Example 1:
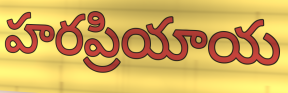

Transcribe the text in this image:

హరప్రియాయ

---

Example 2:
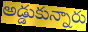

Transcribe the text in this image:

అడ్డుకున్నారు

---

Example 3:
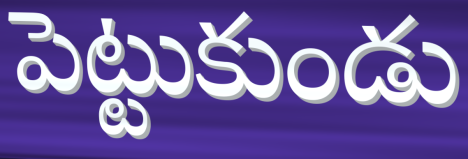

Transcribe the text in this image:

పెట్టుకుండు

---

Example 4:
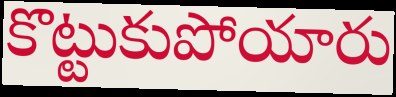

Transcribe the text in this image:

కొట్టుకుపోయారు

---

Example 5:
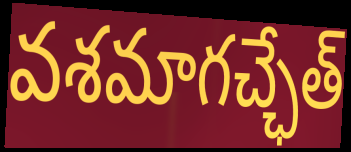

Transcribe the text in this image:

వశమాగచ్ఛేత్